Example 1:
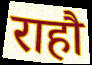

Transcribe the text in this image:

राहौ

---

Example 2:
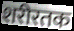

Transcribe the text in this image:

शरीरतक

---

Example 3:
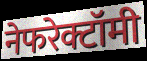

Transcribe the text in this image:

नेफरेक्टॉमी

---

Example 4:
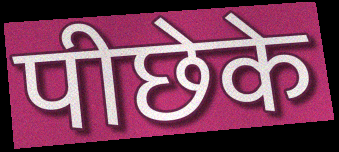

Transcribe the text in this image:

पीछेके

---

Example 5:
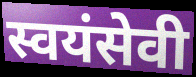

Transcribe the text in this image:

स्वयंसेवी